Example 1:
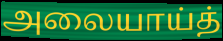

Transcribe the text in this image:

அலையாய்த்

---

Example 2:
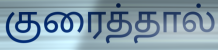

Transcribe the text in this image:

குரைத்தால்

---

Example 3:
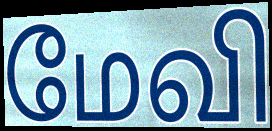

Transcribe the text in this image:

மேவி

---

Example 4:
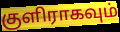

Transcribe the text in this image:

குளிராகவும்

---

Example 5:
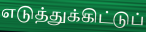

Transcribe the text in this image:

எடுத்துக்கிட்டுப்